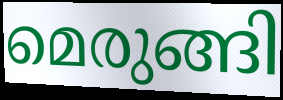
മെരുങ്ങി